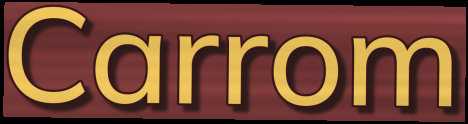
Carrom